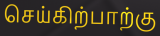
செய்கிற்பாற்கு